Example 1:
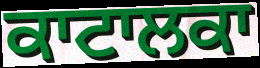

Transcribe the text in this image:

ਕਾਟਾਲਕਾ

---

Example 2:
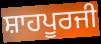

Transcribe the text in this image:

ਸ਼ਾਹਪੂਰਜੀ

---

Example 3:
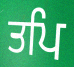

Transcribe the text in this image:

ਤਪਿ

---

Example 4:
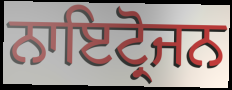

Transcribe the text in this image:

ਨਾਇਟ੍ਰੋਜਨ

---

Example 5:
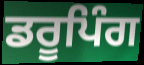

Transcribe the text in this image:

ਡਰੂਪਿੰਗ